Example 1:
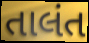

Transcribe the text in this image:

તાલંત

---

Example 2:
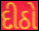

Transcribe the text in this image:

દીઠો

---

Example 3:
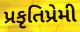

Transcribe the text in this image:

પ્રકૃતિપ્રેમી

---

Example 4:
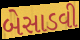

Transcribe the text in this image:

બેસાડવી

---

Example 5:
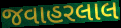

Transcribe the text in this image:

જવાહરલાલ